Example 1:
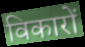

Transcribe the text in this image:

विकारों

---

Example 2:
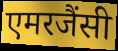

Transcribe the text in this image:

एमरजैंसी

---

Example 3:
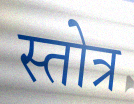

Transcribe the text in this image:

स्तोत्र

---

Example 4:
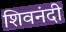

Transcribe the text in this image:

शिवनंदी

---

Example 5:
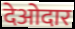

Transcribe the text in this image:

देओदार